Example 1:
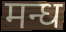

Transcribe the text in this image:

मन्ध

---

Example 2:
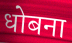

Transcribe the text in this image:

धोबना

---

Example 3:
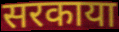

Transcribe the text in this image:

सरकाया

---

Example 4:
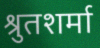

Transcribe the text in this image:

श्रुतशर्मा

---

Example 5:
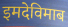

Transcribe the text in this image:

इमदेविमाब